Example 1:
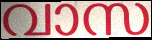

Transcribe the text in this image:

വാസ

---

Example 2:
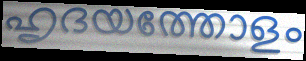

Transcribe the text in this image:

ഹൃദയത്തോളം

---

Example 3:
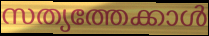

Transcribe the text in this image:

സത്യത്തേക്കാൾ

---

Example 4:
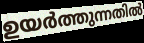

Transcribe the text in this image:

ഉയർത്തുന്നതിൽ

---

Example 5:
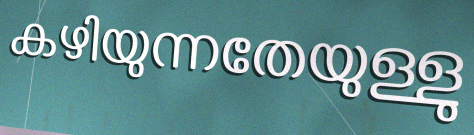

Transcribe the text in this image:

കഴിയുന്നതേയുള്ളു